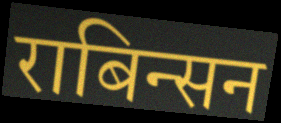
राबिन्सन